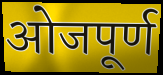
ओजपूर्ण